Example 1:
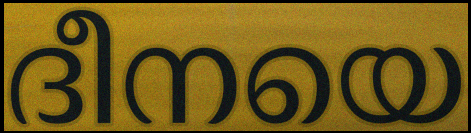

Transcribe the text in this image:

ദീനയെ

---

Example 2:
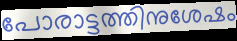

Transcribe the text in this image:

പോരാട്ടത്തിനുശേഷം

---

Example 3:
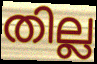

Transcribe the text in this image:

തില്ല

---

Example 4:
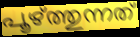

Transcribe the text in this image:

പൂഴ്ത്തുന്നത്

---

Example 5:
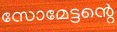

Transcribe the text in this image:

സോമേട്ടന്റെ